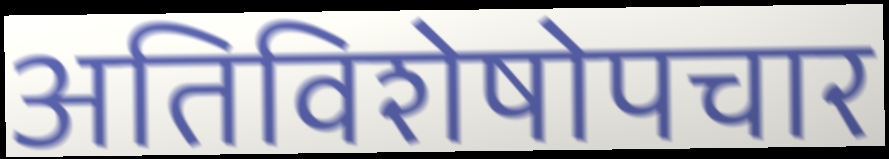
अतिविशेषोपचार